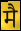
मै